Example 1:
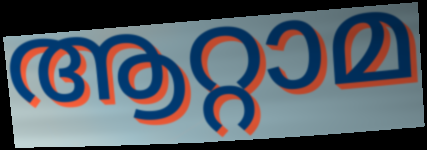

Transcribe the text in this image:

ആറ്റാമ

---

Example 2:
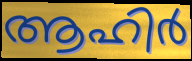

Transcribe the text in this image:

ആഹിർ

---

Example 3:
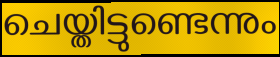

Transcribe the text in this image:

ചെയ്തിട്ടുണ്ടെന്നും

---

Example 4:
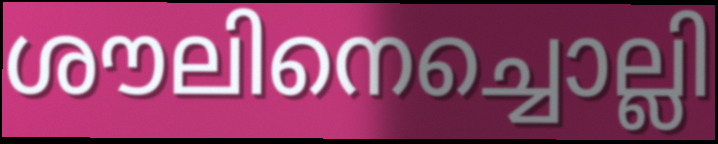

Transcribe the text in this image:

ശൗലിനെച്ചൊല്ലി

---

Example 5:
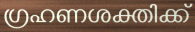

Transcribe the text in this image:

ഗ്രഹണശക്തിക്ക്